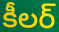
కీలర్